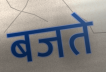
बजते